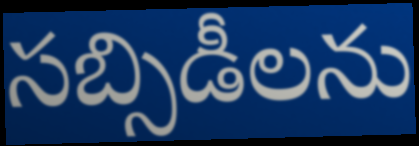
సబ్సిడీలను